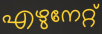
എഴുനേറ്റ്